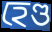
হেণ্ড